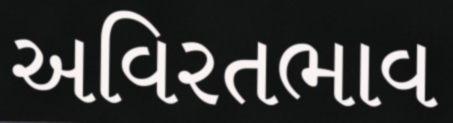
અવિરતભાવ